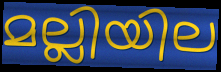
മല്ലിയില